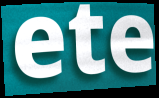
ete